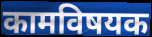
कामविषयक